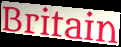
Britain